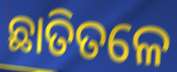
ଛାତିତଳେ